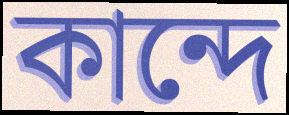
কান্দে